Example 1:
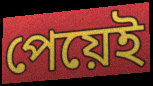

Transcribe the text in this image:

পেয়েই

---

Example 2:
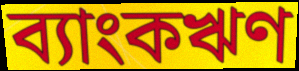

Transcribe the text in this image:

ব্যাংকঋণ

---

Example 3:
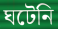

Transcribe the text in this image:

ঘটেনি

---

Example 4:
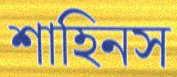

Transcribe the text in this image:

শাহিনস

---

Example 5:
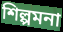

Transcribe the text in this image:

শিল্পমনা